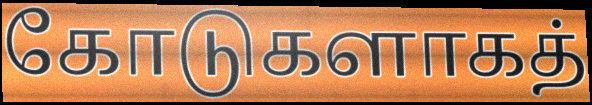
கோடுகளாகத்